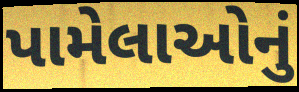
પામેલાઓનું